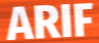
ARIF